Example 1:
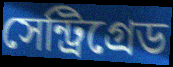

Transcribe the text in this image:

সেন্ট্রিগ্রেড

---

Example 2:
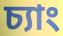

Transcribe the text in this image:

চ্যাং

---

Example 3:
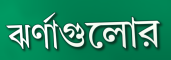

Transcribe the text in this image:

ঝর্ণাগুলোর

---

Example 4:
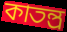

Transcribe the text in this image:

কাতন্ত্র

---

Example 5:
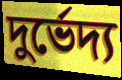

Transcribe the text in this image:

দুর্ভেদ্য